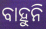
ବାହୁନି